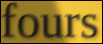
fours